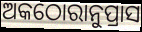
ଅକଠୋରାନୁପ୍ରାସ